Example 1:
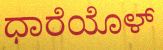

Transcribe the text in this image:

ಧಾರೆಯೊಳ್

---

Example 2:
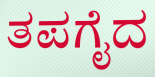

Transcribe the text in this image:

ತಪಗೈದ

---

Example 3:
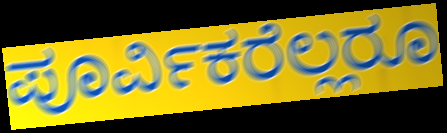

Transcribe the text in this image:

ಪೂರ್ವಿಕರೆಲ್ಲರೂ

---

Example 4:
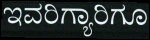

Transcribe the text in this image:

ಇವರಿಗ್ಯಾರಿಗೂ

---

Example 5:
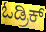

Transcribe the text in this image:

ಓಡ್ರಿಕ್